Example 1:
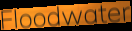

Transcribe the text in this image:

Floodwater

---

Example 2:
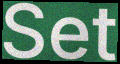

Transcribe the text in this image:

Set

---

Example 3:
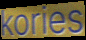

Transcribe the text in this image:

kories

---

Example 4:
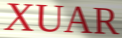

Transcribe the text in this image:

XUAR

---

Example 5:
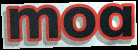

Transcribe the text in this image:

moa